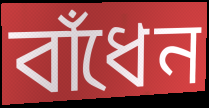
বাঁধেন